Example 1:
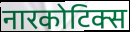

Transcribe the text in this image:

नारकोटिक्स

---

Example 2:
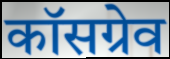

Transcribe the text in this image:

कॉसग्रेव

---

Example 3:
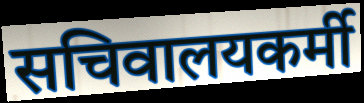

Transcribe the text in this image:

सचिवालयकर्मी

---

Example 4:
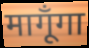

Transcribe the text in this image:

मागूँगा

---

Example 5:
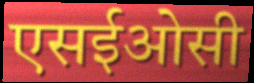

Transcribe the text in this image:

एसईओसी